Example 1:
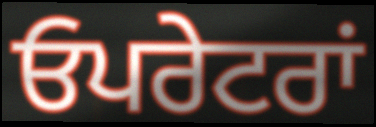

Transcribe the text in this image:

ਓਪਰੇਟਰਾਂ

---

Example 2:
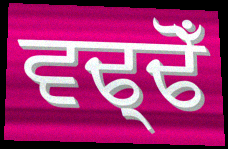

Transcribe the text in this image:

ਵਢ੍ਢੋਁ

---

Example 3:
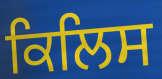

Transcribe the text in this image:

ਕਿਲਿਸ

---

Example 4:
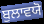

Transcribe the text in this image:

ਬੁਲਾਵਯੋ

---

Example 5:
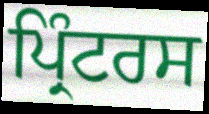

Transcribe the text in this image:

ਪ੍ਰਿੰਟਰਸ